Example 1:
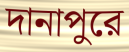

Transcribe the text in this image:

দানাপুরে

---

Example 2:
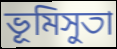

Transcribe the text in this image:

ভূমিসুতা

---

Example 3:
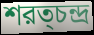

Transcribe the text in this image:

শরত্চন্দ্র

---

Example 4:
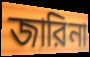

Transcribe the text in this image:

জারিনা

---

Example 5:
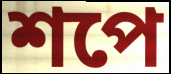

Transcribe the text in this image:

শপে